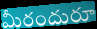
మీరందురూ